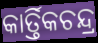
କାର୍ତ୍ତିକଚନ୍ଦ୍ର